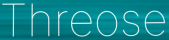
Threose